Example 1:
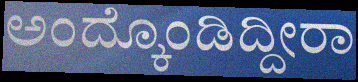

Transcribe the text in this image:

ಅಂದ್ಕೊಂಡಿದ್ದೀರಾ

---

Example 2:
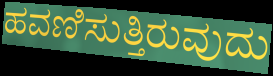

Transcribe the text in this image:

ಹವಣಿಸುತ್ತಿರುವುದು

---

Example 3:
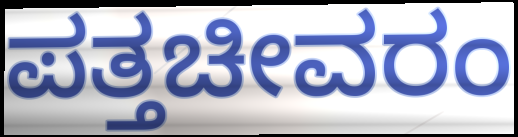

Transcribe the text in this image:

ಪತ್ತಚೀವರಂ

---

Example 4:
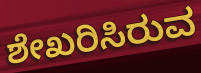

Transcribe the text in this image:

ಶೇಖರಿಸಿರುವ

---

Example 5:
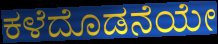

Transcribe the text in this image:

ಕಳೆದೊಡನೆಯೇ